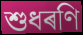
শুধৰণি